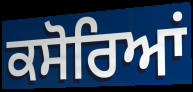
ਕਸੋਰਿਆਂ